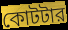
কোটটার